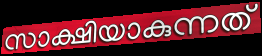
സാക്ഷിയാകുന്നത്